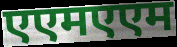
एएमएएम